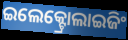
ଇଲେକ୍ଟ୍ରୋଲାଇଜିଂ